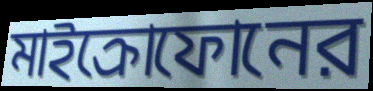
মাইক্রোফোনের